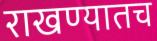
राखण्यातच